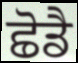
ਛੋਡੈ